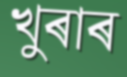
খুৰাৰ